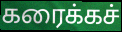
கரைக்கச்